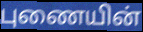
புணையின்